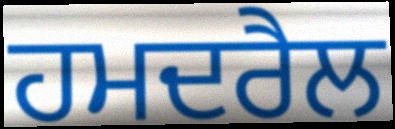
ਹਮਦਰੈਲ